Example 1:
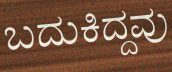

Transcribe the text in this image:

ಬದುಕಿದ್ದವು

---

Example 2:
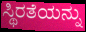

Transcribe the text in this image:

ಸ್ಥಿರತೆಯನ್ನು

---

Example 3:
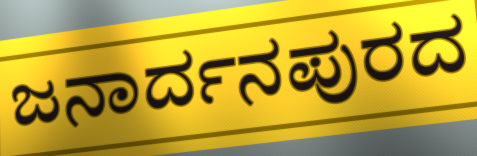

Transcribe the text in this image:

ಜನಾರ್ದನಪುರದ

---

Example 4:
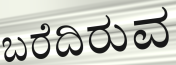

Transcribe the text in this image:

ಬರೆದಿರುವ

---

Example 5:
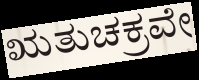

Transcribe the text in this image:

ಋತುಚಕ್ರವೇ